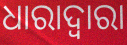
ଧାରାଦ୍ୱାରା